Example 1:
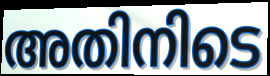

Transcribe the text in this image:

അതിനിടെ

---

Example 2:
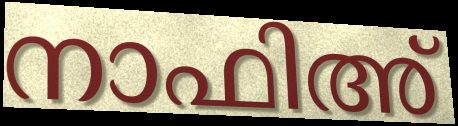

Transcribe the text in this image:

നാഫിഅ്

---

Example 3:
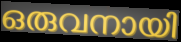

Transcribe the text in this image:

ഒരുവനായി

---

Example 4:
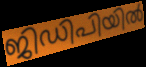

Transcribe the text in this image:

ജിഡിപിയിൽ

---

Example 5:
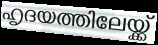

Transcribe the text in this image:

ഹൃദയത്തിലേയ്ക്ക്